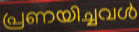
പ്രണയിച്ചവൾ